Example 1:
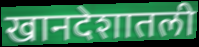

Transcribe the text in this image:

खानदेशातली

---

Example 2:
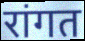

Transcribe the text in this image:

रांगत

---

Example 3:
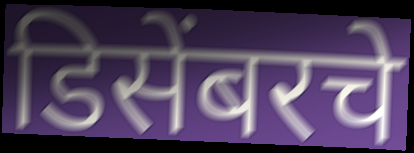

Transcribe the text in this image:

डिसेंबरचे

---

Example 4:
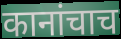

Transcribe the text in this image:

कानांचाच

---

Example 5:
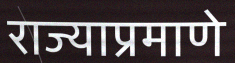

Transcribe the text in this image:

राज्याप्रमाणे